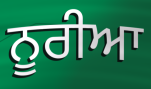
ਨੂਰੀਆ